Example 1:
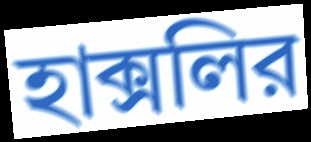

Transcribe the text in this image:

হাক্সলির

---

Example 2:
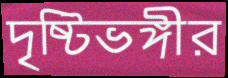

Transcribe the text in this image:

দৃষ্টিভঙ্গীর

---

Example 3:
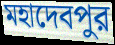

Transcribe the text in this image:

মহাদেবপুর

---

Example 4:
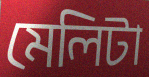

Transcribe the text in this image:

মেলিটা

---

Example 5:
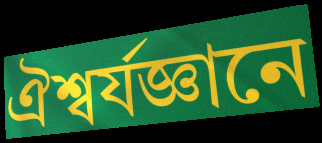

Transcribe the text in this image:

ঐশ্বর্যজ্ঞানে